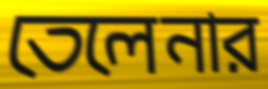
তেলেনার